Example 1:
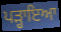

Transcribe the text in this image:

ਪੜ੍ਹਾਇਆ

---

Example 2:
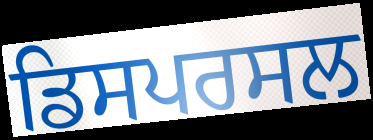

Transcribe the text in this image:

ਡਿਸਪਰਸਲ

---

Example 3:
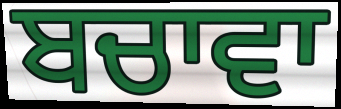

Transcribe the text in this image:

ਬਚਾਵਾ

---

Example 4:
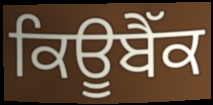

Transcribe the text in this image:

ਕਿਊਬੈੱਕ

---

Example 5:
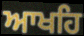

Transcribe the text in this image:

ਆਖਹਿ